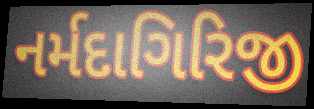
નર્મદાગિરિજી